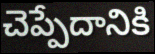
చెప్పేదానికి